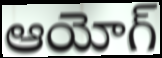
ఆయోగ్